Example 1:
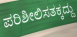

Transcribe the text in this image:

ಪರಿಶೀಲಿಸತಕ್ಕದ್ದು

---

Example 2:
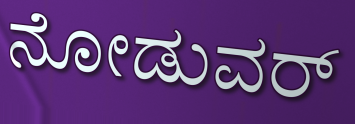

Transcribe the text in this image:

ನೋಡುವರ್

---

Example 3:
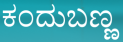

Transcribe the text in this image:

ಕಂದುಬಣ್ಣ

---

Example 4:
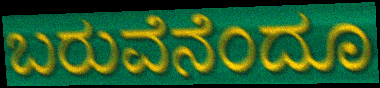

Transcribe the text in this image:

ಬರುವೆನೆಂದೂ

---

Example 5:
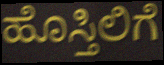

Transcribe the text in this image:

ಹೊಸ್ತಿಲಿಗೆ